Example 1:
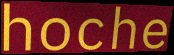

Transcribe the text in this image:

hoche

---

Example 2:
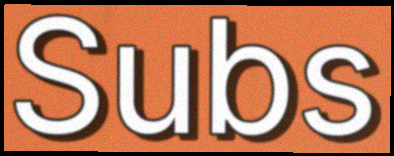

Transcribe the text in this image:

Subs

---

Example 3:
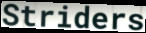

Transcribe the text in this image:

Striders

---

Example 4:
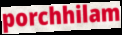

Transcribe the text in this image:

porchhilam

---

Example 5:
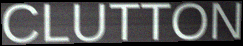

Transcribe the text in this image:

CLUTTON